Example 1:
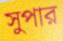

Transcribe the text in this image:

সুপার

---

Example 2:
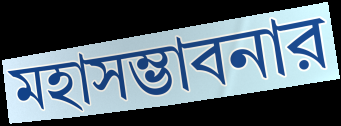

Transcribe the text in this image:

মহাসম্ভাবনার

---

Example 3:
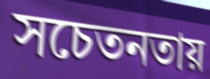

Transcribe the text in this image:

সচেতনতায়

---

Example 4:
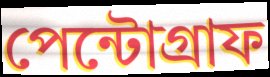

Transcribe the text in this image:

পেন্টোগ্রাফ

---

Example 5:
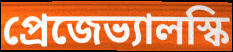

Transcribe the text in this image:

প্রেজেভ্যালস্কি